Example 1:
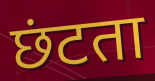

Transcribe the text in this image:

छंटता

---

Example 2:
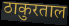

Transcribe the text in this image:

ठाकुरताल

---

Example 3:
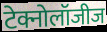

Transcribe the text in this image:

टेक्नोलॉजीज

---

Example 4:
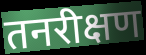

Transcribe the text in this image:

तनरीक्षण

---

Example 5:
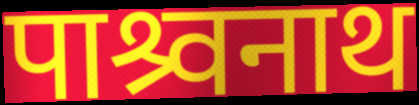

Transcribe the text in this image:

पाश्र्वनाथ